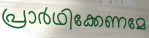
പ്രാർഥിക്കേണമേ